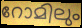
റോമിലും